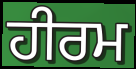
ਹੀਰਮ